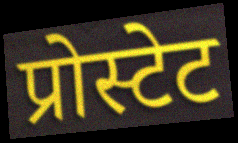
प्रोस्टेट